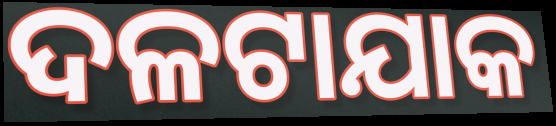
ଦଳଟାଯାକ